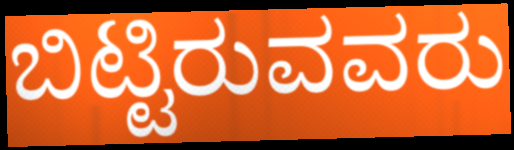
ಬಿಟ್ಟಿರುವವರು